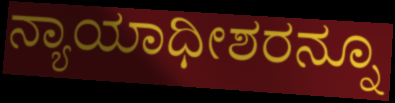
ನ್ಯಾಯಾಧೀಶರನ್ನೂ